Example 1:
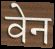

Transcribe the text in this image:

वेन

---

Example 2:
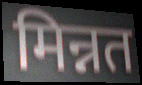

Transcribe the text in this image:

मिन्नत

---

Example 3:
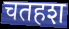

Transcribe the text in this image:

चतहश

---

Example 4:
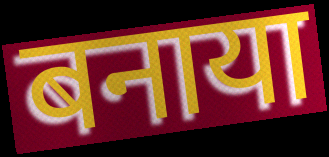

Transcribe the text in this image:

बनाया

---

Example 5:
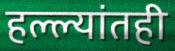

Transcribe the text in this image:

हल्ल्यांतही